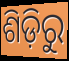
ଶିଡ଼ିରୁ